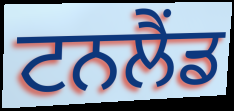
ਟਨਲੈਂਡ